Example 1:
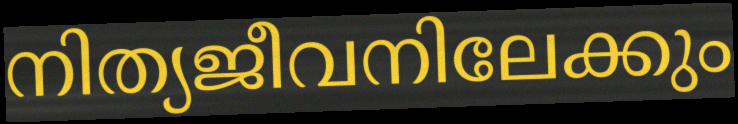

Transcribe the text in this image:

നിത്യജീവനിലേക്കും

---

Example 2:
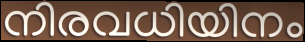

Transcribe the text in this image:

നിരവധിയിനം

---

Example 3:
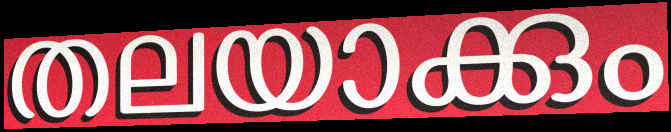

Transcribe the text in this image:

തലയാക്കും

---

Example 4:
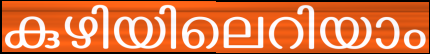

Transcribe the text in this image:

കുഴിയിലെറിയാം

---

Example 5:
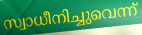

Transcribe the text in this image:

സ്വാധീനിച്ചുവെന്ന്